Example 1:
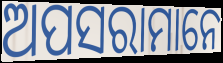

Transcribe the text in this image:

ଅପସରାମାନେ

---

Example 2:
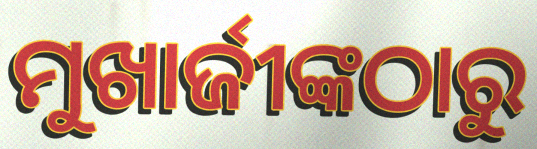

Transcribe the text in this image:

ମୁଖାର୍ଜୀଙ୍କଠାରୁ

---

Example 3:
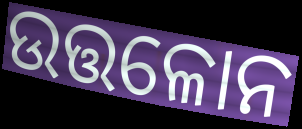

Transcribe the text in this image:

ଉତ୍ତଳୋନ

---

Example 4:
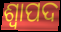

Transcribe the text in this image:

ଶ୍ୱାପଦ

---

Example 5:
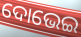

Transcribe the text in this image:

ଦୋଭେଇ